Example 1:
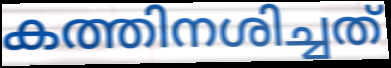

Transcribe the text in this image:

കത്തിനശിച്ചത്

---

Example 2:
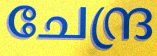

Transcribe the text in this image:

ചേന്ദ്ര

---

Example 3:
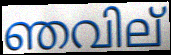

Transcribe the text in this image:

ഞവില്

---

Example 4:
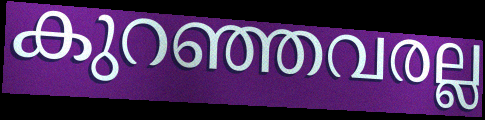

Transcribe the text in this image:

കുറഞ്ഞവരല്ല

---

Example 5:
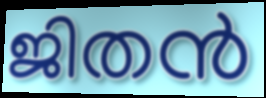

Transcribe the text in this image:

ജിതൻ